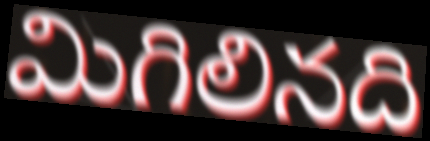
మిగిలినది